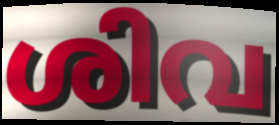
ശിവ